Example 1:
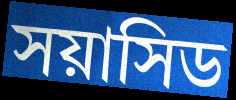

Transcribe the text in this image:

সয়াসিড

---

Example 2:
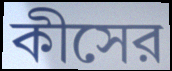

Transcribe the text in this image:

কীসের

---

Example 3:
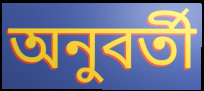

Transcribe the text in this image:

অনুবর্তী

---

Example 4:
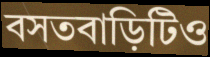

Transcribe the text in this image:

বসতবাড়িটিও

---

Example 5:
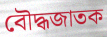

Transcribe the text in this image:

বৌদ্ধজাতক